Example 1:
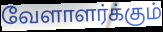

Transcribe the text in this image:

வேளாளர்க்கும்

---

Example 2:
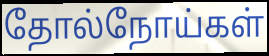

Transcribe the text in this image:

தோல்நோய்கள்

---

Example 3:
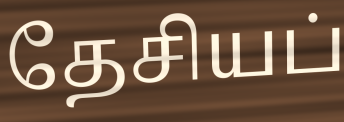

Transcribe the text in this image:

தேசியப்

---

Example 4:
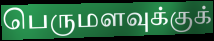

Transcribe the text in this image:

பெருமளவுக்குக்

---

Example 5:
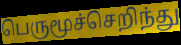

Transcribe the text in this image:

பெருமூச்செறிந்து